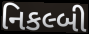
નિકલ્બી